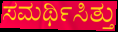
ಸಮರ್ಥಿಸಿತ್ತು